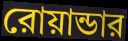
রোয়ান্ডার